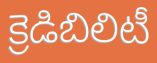
క్రెడిబిలిటీ